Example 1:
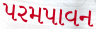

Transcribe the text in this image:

પરમપાવન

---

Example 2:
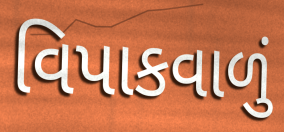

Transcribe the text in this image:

વિપાકવાળું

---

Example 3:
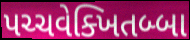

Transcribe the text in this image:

પચ્ચવેક્ખિતબ્બા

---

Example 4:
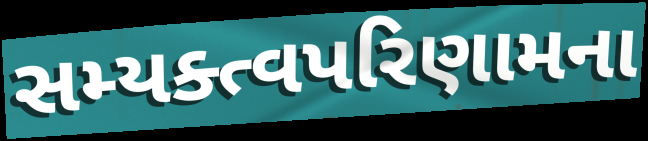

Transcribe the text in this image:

સમ્યક્ત્વપરિણામના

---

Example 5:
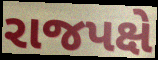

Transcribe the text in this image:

રાજપક્ષે